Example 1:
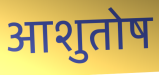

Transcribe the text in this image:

आशुतोष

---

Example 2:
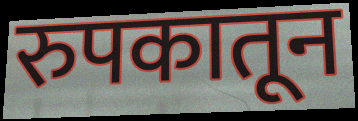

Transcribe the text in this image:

रुपकातून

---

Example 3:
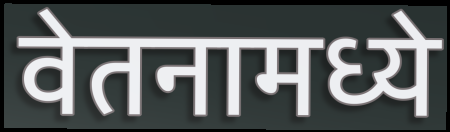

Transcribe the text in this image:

वेतनामध्ये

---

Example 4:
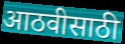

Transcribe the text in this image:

आठवीसाठी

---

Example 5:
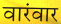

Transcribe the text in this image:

वारंवार